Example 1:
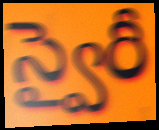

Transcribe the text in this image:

స్వైరీ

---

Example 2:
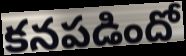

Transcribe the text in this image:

కనపడిందో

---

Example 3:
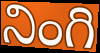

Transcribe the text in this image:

నింగి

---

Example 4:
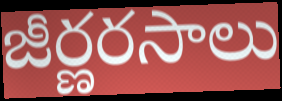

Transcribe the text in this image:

జీర్ణరసాలు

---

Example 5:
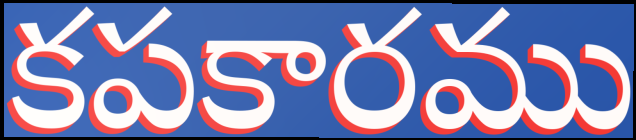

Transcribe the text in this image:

కపకారము